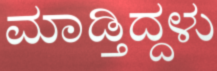
ಮಾಡ್ತಿದ್ದಳು